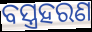
ବସ୍ତ୍ରହରଣ